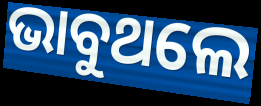
ଭାବୁଥଲେ